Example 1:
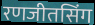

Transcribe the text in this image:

रणजीतसिंग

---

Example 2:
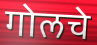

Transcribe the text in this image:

गोलचे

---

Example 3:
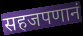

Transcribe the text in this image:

सहजपणानं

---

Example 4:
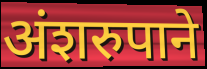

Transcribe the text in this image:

अंशरुपाने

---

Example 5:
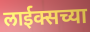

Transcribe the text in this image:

लाईक्सच्या